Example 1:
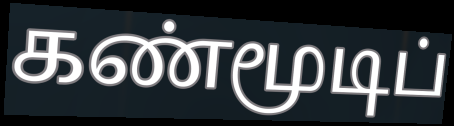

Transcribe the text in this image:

கண்மூடிப்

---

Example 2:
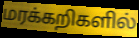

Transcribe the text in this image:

மரக்கறிகளில்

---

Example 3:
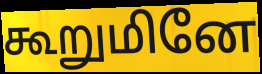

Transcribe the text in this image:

கூறுமினே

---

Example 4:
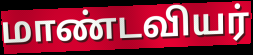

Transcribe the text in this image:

மாண்டவியர்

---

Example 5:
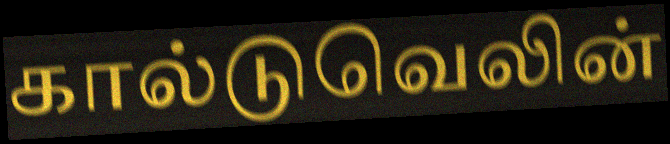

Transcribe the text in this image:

கால்டுவெலின்